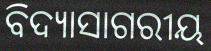
ବିଦ୍ୟାସାଗରୀୟ